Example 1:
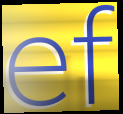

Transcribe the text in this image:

ef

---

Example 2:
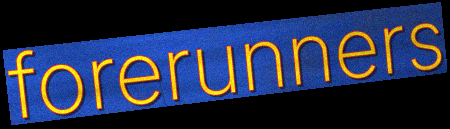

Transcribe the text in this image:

forerunners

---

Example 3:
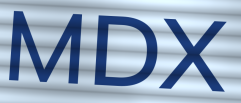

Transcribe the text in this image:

MDX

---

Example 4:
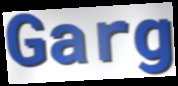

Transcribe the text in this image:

Garg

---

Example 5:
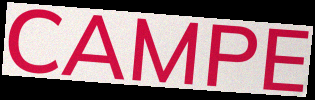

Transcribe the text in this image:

CAMPE